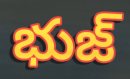
భుజ్